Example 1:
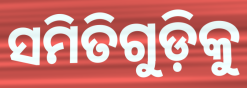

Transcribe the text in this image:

ସମିତିଗୁଡ଼ିକୁ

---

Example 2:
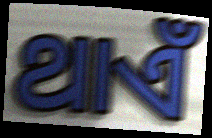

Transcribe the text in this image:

ଥାଏଁ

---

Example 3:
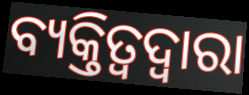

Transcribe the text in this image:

ବ୍ୟକ୍ତିତ୍ୱଦ୍ୱାରା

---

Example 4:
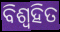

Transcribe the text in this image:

ବିଶ୍ଵହିତ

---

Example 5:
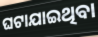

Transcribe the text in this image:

ଘଟାଯାଇଥିବା